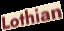
Lothian